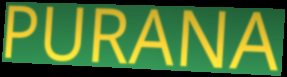
PURANA